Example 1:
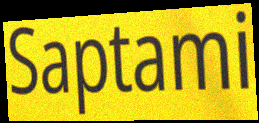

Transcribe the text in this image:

Saptami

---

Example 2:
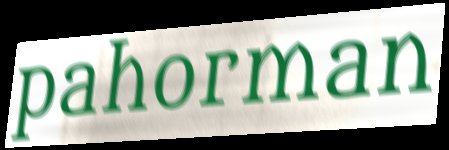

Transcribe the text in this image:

pahorman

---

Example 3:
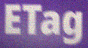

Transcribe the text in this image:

ETag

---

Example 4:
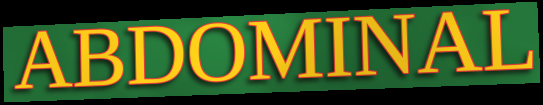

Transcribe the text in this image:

ABDOMINAL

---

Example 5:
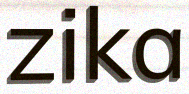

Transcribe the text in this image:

zika